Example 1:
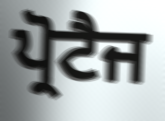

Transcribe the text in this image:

ਪ੍ਰੋਟੈਜ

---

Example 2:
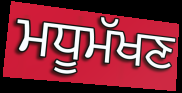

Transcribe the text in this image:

ਮਧੂਮੱਖਣ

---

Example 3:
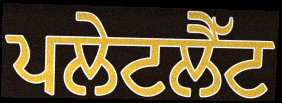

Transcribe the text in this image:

ਪਲੇਟਲੈੱਟ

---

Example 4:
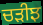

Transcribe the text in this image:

ਚੜੀਝ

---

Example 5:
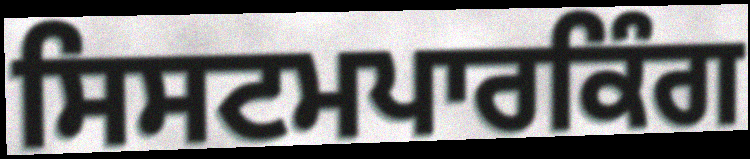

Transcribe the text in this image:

ਸਿਸਟਮਪਾਰਕਿੰਗ